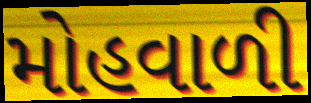
મોહવાળી